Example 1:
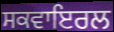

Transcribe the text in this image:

ਸਕਵਾਇਰਲ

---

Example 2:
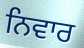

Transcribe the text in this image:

ਨਿਵਾਰ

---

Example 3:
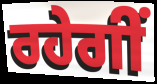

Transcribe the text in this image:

ਰਹੇਗੀਂ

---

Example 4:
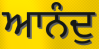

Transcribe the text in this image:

ਆਨੰਦੁ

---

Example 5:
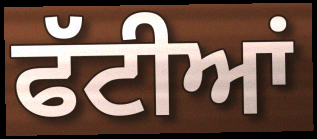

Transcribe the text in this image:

ਫੱਟੀਆਂ